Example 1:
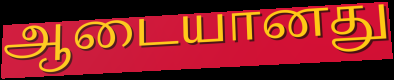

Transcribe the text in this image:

ஆடையானது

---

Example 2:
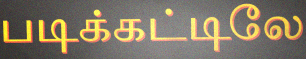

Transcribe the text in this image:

படிக்கட்டிலே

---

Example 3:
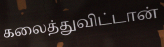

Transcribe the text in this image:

கலைத்துவிட்டான்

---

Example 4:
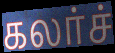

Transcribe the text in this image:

கலர்ச்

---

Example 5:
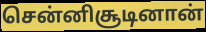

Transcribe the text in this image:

சென்னிசூடினான்